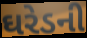
ઘરેડની